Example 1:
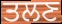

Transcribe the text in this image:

ਤਲਣ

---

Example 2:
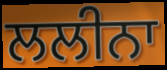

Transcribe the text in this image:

ਲਲੀਨਾ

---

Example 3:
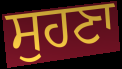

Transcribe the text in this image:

ਸੁਹਣਾ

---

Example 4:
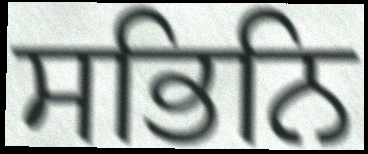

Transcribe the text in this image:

ਸਭਿਨਿ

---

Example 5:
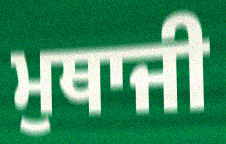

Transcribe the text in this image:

ਮੁਥਾਜੀ